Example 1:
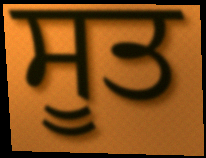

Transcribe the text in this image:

ਸੂਤ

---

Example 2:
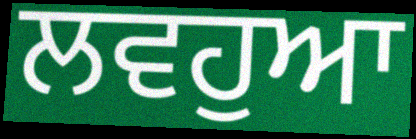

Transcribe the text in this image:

ਲਵਹੁਆ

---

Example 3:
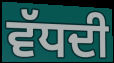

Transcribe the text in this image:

ਵੱਧਦੀ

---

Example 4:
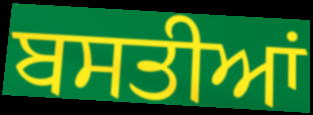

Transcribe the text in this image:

ਬਸਤੀਆਂ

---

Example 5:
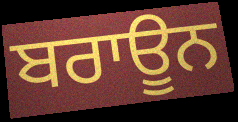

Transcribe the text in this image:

ਬਰਾਊਨ